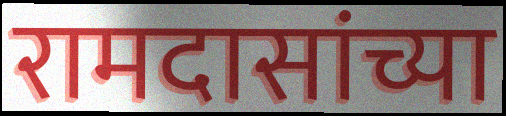
रामदासांच्या